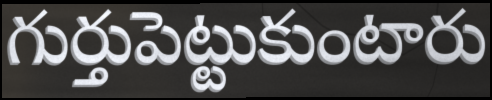
గుర్తుపెట్టుకుంటారు